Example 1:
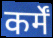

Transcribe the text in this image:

कर्में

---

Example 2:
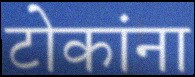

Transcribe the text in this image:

टोकांना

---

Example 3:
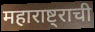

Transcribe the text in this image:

महाराष्ट्राची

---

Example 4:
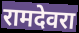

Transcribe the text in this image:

रामदेवरा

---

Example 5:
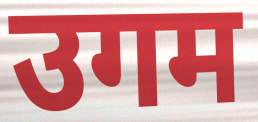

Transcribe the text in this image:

उगम